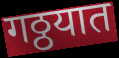
गठ्ठयात